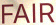
FAIR